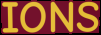
IONS